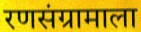
रणसंग्रामाला